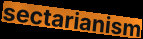
sectarianism